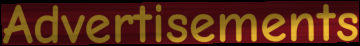
Advertisements